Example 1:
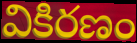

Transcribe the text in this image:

వికిరణం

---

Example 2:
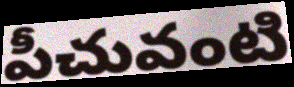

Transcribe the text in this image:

పీచువంటి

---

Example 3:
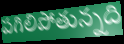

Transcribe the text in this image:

పగిలిపోతున్నది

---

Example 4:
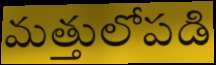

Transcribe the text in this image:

మత్తులోపడి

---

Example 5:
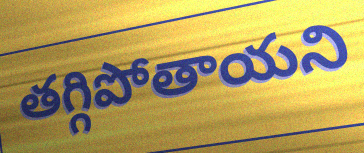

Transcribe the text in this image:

తగ్గిపోతాయని